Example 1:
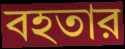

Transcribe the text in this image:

বহতার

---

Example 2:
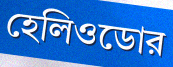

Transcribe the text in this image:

হেলিওডোর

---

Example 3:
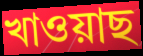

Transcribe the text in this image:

খাওয়াছ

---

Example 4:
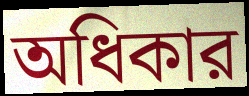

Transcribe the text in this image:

অধিকার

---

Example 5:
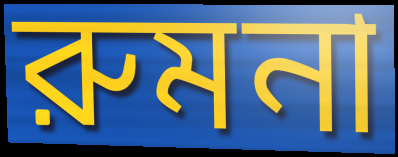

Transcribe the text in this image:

রুমনা